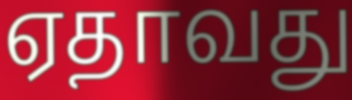
ஏதாவது